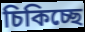
চিকিচ্ছে